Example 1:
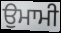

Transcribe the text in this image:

ਉਮਾਮੀ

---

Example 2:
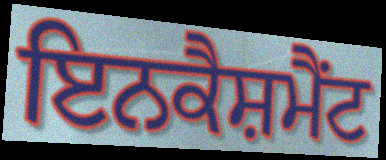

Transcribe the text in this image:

ਇਨਕੈਸ਼ਮੈਂਟ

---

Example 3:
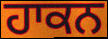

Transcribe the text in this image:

ਹਾਕਨ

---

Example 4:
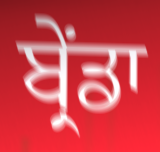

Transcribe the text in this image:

ਬ੍ਰੇਂਡਾ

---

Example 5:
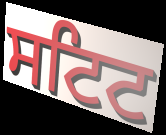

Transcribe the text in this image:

ਸਟਿਟ